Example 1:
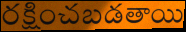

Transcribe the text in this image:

రక్షించబడతాయి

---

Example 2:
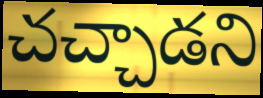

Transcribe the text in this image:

చచ్చాడని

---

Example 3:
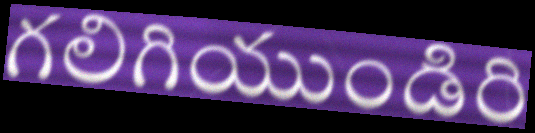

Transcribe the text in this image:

గలిగియుండిరి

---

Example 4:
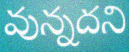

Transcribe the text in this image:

వున్నదని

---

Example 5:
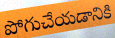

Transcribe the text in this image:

పోగుచేయడానికి